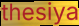
thesiya